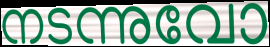
നടന്നുവോ